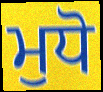
ਮੁਧੋ